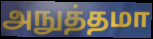
அநுத்தமா